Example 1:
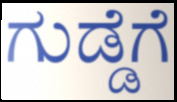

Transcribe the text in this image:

ಗುಡ್ಡೆಗೆ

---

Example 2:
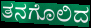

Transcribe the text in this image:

ತನಗೊಲಿದ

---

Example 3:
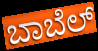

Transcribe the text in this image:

ಬಾಬೆಲ್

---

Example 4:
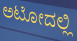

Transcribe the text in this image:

ಅಟೋದಲ್ಲಿ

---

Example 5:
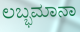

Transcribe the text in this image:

ಲಬ್ಭಮಾನಾ